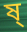
ষ্